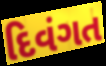
દિવંગત